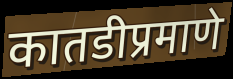
कातडीप्रमाणे